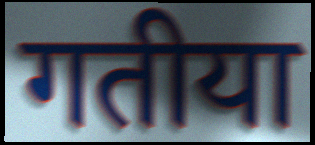
गतीया